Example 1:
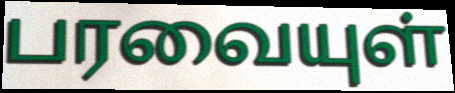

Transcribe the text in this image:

பரவையுள்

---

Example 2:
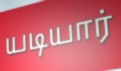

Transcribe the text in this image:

யடியார்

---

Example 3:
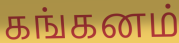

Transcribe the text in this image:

கங்கனம்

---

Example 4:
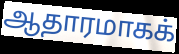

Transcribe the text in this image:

ஆதாரமாகக்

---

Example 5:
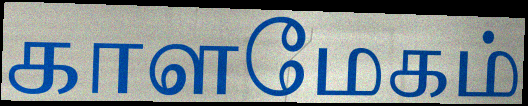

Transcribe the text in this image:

காளமேகம்